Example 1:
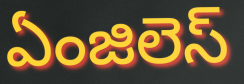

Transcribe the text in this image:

ఏంజిలెస్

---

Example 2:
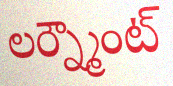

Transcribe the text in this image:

లర్న్మౌంట్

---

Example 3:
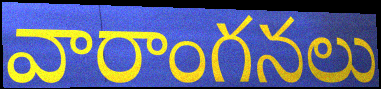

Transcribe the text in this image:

వారాంగనలు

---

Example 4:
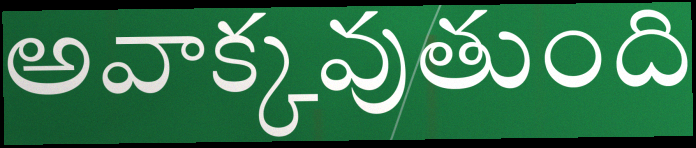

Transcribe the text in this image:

అవాక్కవుతుంది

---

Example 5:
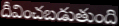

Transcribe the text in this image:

దీవించబడుతుంది